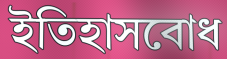
ইতিহাসবোধ